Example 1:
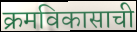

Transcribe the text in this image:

क्रमविकासाची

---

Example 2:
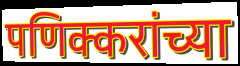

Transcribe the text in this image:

पणिक्करांच्या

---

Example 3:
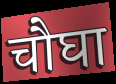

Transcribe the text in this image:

चौघा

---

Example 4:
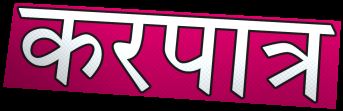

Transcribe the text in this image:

करपात्र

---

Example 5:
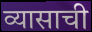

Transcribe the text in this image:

व्यासाची